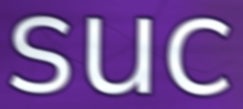
suc